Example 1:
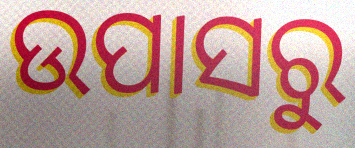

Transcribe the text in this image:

ଉପାସରୁ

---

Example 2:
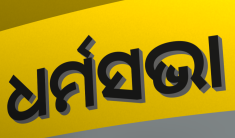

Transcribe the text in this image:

ଧର୍ମସଭା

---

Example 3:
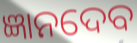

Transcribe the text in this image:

ଜ୍ଞାନଦେବ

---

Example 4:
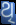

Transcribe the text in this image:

ଥି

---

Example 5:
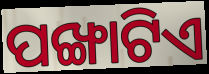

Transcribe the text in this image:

ପଙ୍ଖାଟିଏ